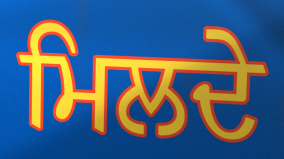
ਮਿਲਦੇ